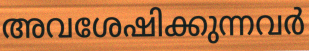
അവശേഷിക്കുന്നവർ